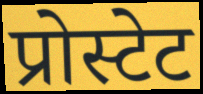
प्रोस्टेट